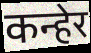
कन्हेर